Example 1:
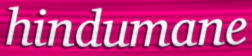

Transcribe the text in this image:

hindumane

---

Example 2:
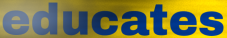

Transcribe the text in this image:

educates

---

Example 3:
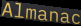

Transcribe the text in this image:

Almanac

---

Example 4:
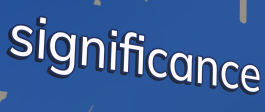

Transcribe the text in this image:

significance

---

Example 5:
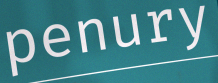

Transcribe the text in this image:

penury